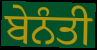
ਬੇਨੰਤੀ